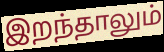
இறந்தாலும்